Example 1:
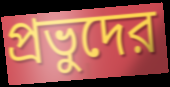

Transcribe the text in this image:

প্রভুদের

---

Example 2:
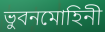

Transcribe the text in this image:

ভুবনমোহিনী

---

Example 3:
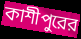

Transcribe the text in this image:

কাশীপুরের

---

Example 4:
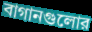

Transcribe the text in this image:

বাগানগুলোর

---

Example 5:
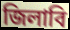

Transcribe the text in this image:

জিলাবি